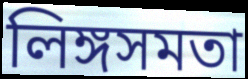
লিঙ্গসমতা